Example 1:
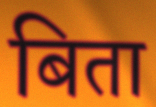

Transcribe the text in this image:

बिता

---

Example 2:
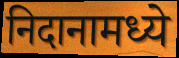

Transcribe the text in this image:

निदानामध्ये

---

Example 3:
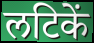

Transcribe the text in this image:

लटिकें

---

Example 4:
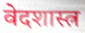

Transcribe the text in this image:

वेदशास्त्र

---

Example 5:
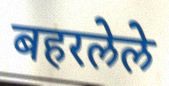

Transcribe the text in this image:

बहरलेले